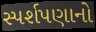
સ્પર્શપણાનો